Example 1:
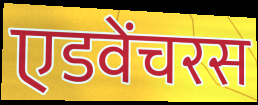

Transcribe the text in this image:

एडवेंचरस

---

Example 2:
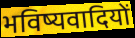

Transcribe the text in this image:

भविष्यवादियों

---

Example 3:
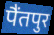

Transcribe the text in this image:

पैंतपुर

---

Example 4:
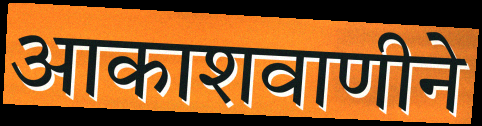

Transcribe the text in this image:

आकाशवाणीने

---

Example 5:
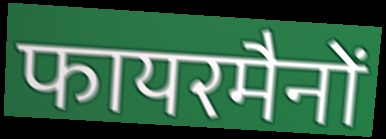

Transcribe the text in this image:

फायरमैनों